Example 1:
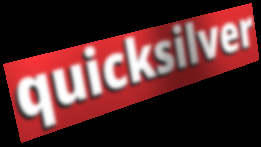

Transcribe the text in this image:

quicksilver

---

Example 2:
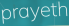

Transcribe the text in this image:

prayeth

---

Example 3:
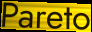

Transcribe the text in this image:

Pareto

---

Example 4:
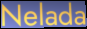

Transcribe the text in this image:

Nelada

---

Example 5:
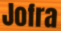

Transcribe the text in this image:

Jofra